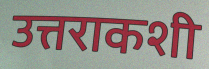
उत्तराकशी